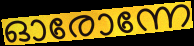
ഓരോന്നേ